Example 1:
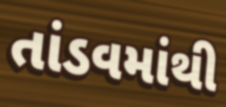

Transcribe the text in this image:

તાંડવમાંથી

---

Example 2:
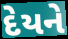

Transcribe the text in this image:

દેયને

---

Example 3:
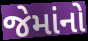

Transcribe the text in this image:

જેમાંનો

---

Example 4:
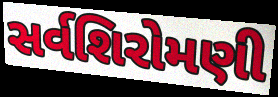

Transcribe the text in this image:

સર્વશિરોમણી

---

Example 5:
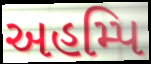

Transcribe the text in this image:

અહમ્પિ